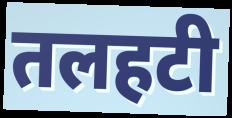
तलहटी